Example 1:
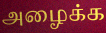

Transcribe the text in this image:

அழைக்க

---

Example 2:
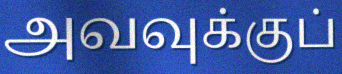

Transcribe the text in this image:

அவவுக்குப்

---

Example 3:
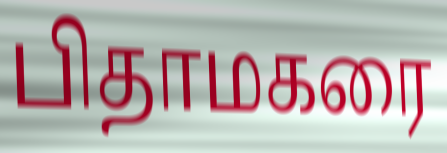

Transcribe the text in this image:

பிதாமகரை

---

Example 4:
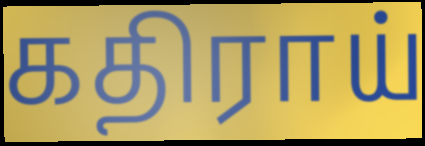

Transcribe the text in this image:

கதிராய்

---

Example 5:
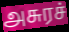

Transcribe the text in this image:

அசுரச்